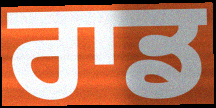
ਰਾਡ